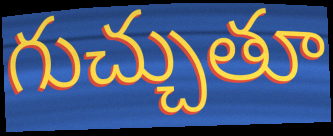
గుచ్చుతూ